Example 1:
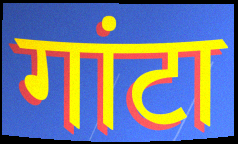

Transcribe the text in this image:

गांटा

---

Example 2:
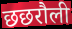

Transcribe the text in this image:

छछरौली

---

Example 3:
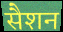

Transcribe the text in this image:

सैशन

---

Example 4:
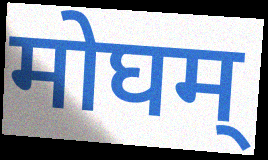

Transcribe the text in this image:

मोघम्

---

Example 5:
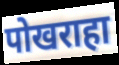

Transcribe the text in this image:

पोखराहा